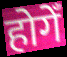
होगेँ